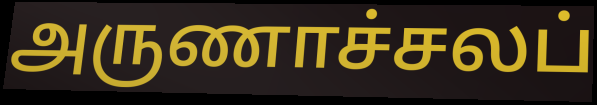
அருணாச்சலப்